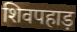
शिवपहाड़